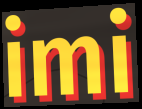
imi